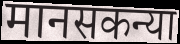
मानसकन्या